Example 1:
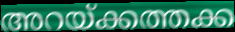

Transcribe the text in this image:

അറയ്ക്കത്തക്ക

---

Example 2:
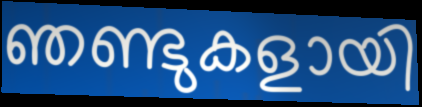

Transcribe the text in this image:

ഞണ്ടുകളായി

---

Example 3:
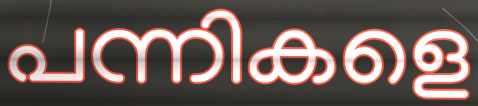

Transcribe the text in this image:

പന്നികളെ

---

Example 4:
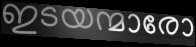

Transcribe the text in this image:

ഇടയന്മാരോ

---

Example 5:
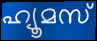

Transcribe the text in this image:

ഹ്യൂമസ്